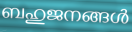
ബഹുജനങ്ങൾ